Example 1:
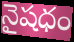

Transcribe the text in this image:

నైషధం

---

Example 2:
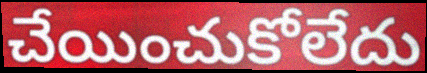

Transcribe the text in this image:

చేయించుకోలేదు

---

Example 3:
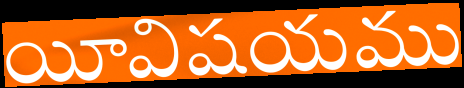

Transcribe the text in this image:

యీవిషయము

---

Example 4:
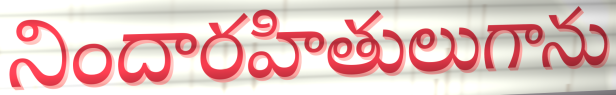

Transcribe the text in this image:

నిందారహితులుగాను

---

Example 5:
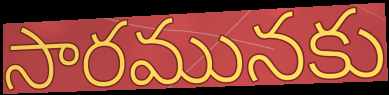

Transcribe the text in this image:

సారమునకు